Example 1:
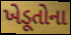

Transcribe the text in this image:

ખેડૂતોના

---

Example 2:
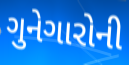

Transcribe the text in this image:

ગુનેગારોની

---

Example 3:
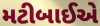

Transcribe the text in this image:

મટીબાઈએ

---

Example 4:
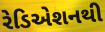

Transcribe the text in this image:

રેડિએશનથી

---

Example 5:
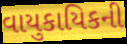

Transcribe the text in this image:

વાયુકાયિકની